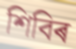
শিবিৰ